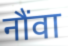
नौंवा